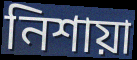
নিশায়া